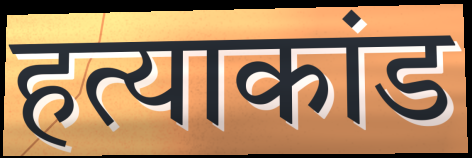
हत्याकांड